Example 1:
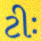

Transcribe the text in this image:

ટીઃ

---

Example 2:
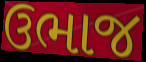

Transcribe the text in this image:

ઉભાજ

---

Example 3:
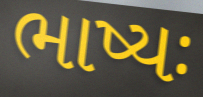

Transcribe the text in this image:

ભાષ્યઃ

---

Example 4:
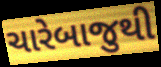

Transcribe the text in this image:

ચારેબાજુથી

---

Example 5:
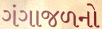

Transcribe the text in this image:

ગંગાજળનો